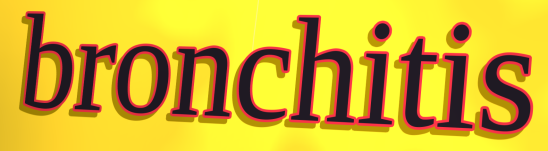
bronchitis